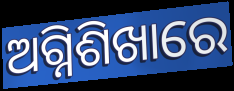
ଅଗ୍ନିଶିଖାରେ